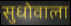
सुधोवाला